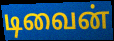
டிவைன்